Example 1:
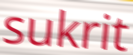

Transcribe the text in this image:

sukrit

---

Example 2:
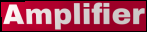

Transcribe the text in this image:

Amplifier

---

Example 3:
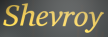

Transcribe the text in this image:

Shevroy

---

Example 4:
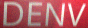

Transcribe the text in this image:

DENV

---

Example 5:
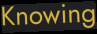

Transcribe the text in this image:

Knowing